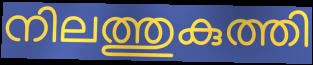
നിലത്തുകുത്തി